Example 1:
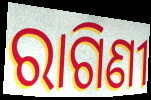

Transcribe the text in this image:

ରାଗିଣୀ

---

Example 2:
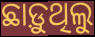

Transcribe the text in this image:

ଛାଡ଼ୁଥିଲୁ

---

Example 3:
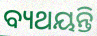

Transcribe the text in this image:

ବ୍ୟଥୟନ୍ତି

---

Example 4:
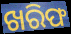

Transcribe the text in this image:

ଖରିଫ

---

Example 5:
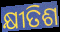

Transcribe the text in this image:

କ୍ଷୀତିଶ